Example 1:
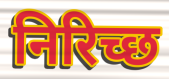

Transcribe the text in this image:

निरिच्छ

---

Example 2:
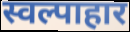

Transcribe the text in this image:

स्वल्पाहार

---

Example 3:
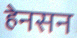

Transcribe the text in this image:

हेनसन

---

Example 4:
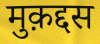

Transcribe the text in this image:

मुक़द्दस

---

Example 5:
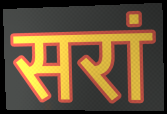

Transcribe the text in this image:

सरां